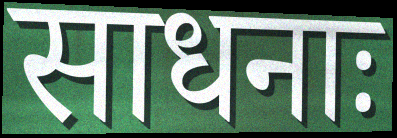
साधनाः